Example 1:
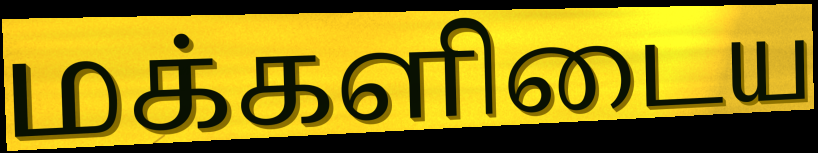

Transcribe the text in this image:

மக்களிடைய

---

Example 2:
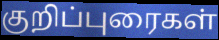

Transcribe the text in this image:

குறிப்புரைகள்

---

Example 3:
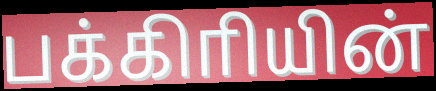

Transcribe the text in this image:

பக்கிரியின்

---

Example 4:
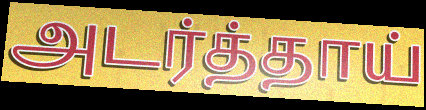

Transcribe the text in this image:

அடர்த்தாய்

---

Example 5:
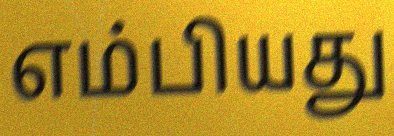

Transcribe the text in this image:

எம்பியது